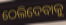
ଠେଲିଦେବାକୁ